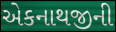
એકનાથજીની